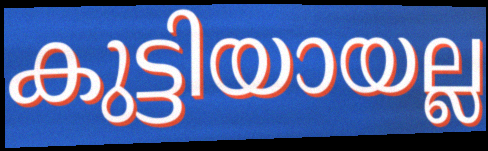
കുട്ടിയായല്ല